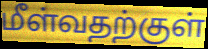
மீள்வதற்குள்